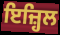
ਇਜ਼੍ਹਿਲ